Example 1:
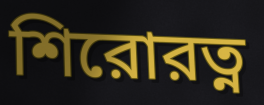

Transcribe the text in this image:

শিরোরত্ন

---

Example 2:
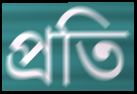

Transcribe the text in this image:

প্রতি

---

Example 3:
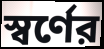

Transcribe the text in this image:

স্বর্ণের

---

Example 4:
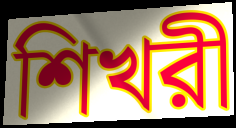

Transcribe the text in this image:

শিখরী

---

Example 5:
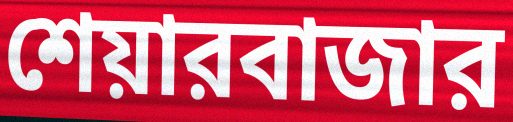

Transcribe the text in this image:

শেয়ারবাজার